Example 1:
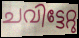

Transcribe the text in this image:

ചവിട്ടേറ്റു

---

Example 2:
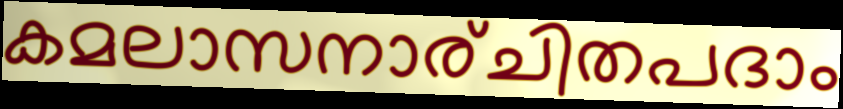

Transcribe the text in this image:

കമലാസനാര്ചിതപദാം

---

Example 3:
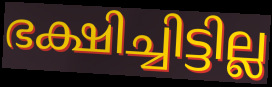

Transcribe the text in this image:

ഭക്ഷിച്ചിട്ടില്ല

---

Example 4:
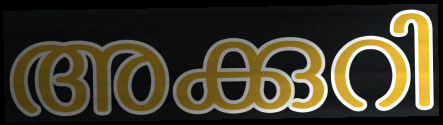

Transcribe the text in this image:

അക്കുറി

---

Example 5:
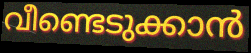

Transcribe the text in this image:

വീണ്ടെടുക്കാൻ